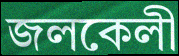
জলকেলী